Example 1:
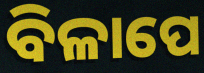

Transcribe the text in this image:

ବିଳାପେ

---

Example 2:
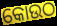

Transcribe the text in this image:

କୋଉଠ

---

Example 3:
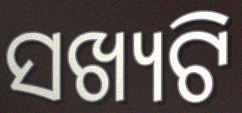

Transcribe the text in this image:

ସଖ୍ୟଟି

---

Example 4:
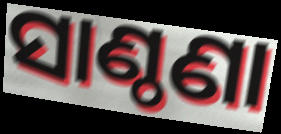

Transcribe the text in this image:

ସାଣ୍ଠଣା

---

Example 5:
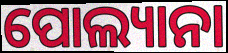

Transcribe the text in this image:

ପୋଲ୍ୟାନା